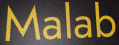
Malab